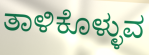
ತಾಳಿಕೊಳ್ಳುವ